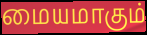
மையமாகும்